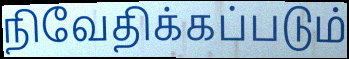
நிவேதிக்கப்படும்